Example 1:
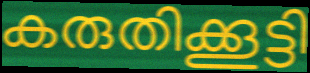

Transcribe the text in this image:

കരുതിക്കൂട്ടി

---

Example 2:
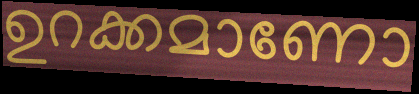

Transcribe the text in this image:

ഉറക്കമാണോ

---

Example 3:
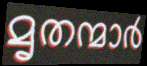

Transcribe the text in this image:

മൃതന്മാർ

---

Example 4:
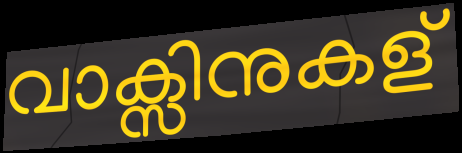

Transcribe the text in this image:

വാക്സിനുകള്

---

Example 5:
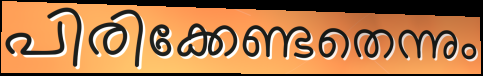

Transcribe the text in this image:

പിരിക്കേണ്ടതെന്നും